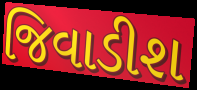
જિવાડીશ